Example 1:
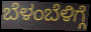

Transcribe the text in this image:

ಬೆಳಂಬೆಳಿಗ್ಗೆ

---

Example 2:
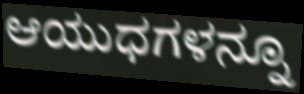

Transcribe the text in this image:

ಆಯುಧಗಳನ್ನೂ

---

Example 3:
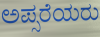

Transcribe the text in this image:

ಅಪ್ಸರೆಯರು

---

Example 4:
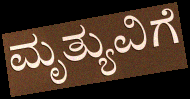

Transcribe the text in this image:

ಮೃತ್ಯುವಿಗೆ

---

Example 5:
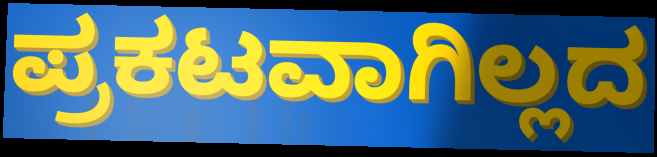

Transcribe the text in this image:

ಪ್ರಕಟವಾಗಿಲ್ಲದ